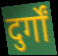
दुर्गों